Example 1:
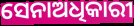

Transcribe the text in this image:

ସେନାଅଧିକାରୀ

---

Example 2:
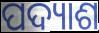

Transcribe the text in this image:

ପଦ୍ୟାଶ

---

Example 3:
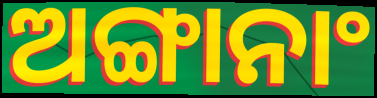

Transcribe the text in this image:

ଅଙ୍ଗାନାଂ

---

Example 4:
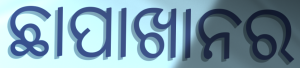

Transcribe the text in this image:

ଛାପାଖାନର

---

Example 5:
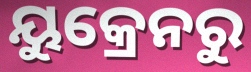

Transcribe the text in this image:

ୟୁକ୍ରେନରୁ